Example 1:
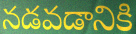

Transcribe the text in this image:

నడవడానికి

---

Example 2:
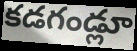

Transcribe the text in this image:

కడగండ్లూ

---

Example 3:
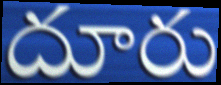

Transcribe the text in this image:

దూరు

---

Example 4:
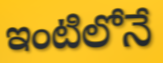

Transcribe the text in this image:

ఇంటిలోనే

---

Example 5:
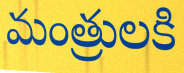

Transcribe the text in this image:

మంత్రులకి